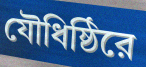
যৌধিষ্ঠিরে